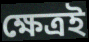
ক্ষেত্ৰই